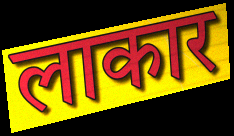
लाकार